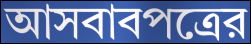
আসবাবপত্রের